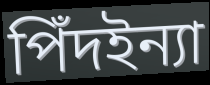
পিঁদইন্যা